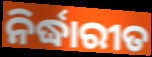
ନିର୍ଦ୍ଧାରୀତ